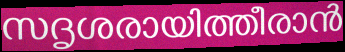
സദൃശരായിത്തീരാൻ